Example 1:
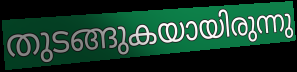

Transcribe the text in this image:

തുടങ്ങുകയായിരുന്നു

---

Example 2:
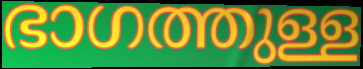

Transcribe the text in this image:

ഭാഗത്തുള്ള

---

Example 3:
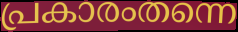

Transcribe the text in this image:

പ്രകാരംതന്നെ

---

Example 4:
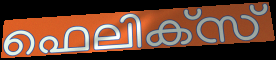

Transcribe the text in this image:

ഫെലിക്‌സ്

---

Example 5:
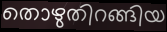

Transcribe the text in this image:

തൊഴുതിറങ്ങിയ